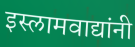
इस्लामवाद्यांनी